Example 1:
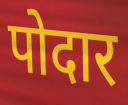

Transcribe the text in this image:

पोदार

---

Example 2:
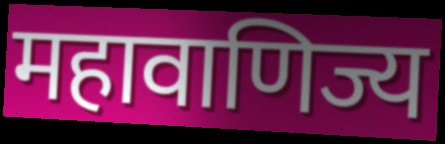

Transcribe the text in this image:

महावाणिज्य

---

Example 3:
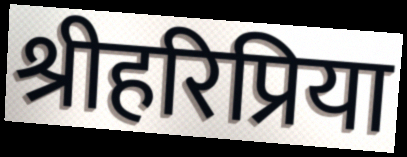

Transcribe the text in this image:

श्रीहरिप्रिया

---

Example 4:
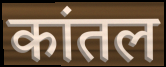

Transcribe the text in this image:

कांतल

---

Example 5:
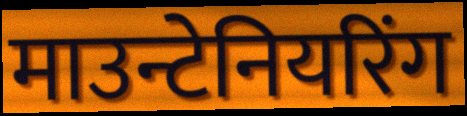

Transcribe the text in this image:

माउन्टेनियरिंग